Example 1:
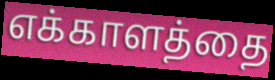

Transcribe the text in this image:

எக்காளத்தை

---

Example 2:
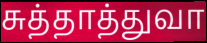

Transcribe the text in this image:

சுத்தாத்துவா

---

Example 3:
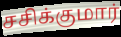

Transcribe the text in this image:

சசிக்குமார்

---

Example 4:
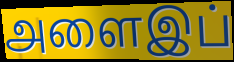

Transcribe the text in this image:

அளைஇப்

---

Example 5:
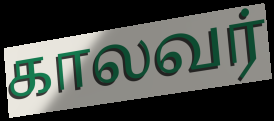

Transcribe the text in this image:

காலவர்